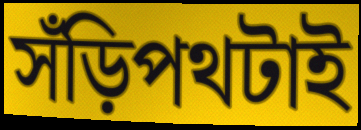
সঁড়িপথটাই